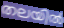
തലയിൽ